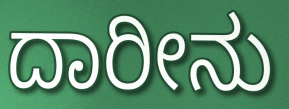
ದಾರೀನು